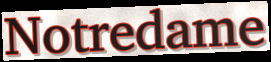
Notredame